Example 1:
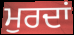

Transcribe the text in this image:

ਮੁਰਦਾਂ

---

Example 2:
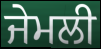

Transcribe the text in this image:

ਜੇਮਲੀ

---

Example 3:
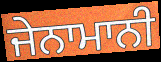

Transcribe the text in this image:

ਜੇਨਾਮਾਨੀ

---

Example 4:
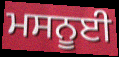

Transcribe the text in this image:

ਮਸਨੂਈ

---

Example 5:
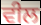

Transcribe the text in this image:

ਵੀਲ